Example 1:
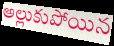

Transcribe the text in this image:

అల్లుకుపోయిన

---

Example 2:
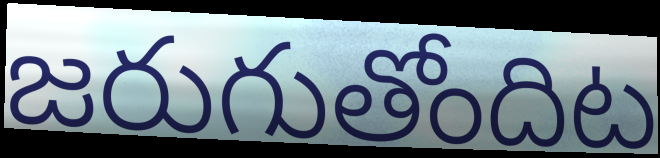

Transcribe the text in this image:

జరుగుతోందిట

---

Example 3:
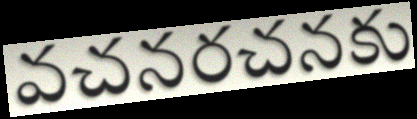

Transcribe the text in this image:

వచనరచనకు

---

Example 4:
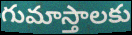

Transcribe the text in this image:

గుమాస్తాలకు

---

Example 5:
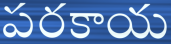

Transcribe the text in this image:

పరకాయ